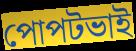
পোপটভাই